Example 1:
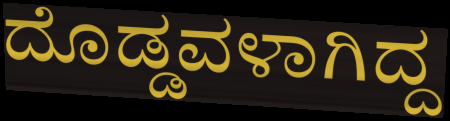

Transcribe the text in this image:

ದೊಡ್ಡವಳಾಗಿದ್ದ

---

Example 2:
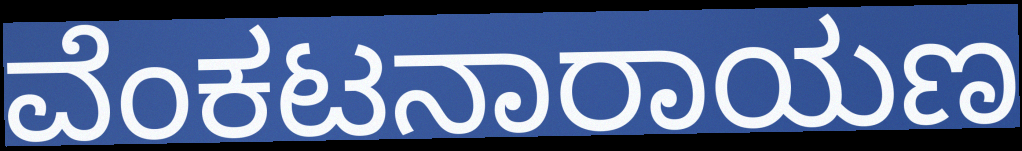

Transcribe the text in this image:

ವೆಂಕಟನಾರಾಯಣ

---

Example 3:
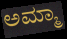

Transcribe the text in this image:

ಅಮ್ಮಾ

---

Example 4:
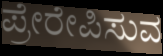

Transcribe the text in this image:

ಪ್ರೇರೇಪಿಸುವ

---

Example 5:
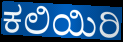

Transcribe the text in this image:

ಕಲಿಯಿರಿ